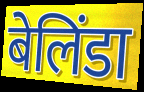
बेलिंडा